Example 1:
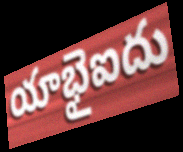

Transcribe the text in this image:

యాభైఐదు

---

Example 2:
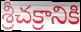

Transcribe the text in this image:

శ్రీచక్రానికి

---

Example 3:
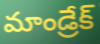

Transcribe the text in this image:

మాండ్రేక్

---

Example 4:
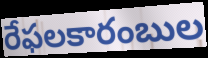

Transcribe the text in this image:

రేఫలకారంబుల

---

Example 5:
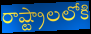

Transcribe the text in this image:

రాష్ట్రాలలోకి